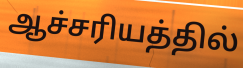
ஆச்சரியத்தில்